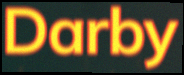
Darby